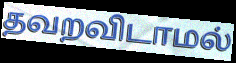
தவறவிடாமல்